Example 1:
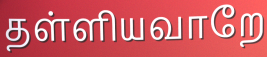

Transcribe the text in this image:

தள்ளியவாறே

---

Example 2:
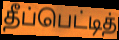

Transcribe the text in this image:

தீப்பெட்டித்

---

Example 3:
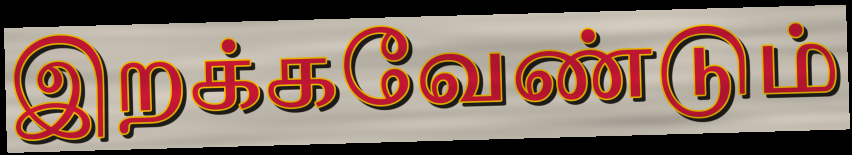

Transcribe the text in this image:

இறக்கவேண்டும்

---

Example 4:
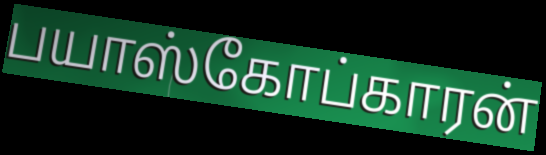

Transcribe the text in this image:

பயாஸ்கோப்காரன்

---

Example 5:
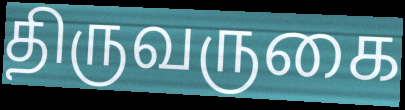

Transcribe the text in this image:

திருவருகை